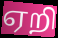
ஏறி